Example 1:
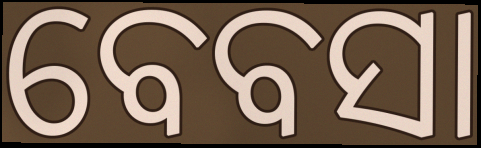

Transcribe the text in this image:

ବେବସା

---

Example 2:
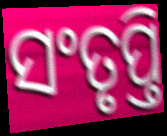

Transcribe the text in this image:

ସଂତୃପ୍ତି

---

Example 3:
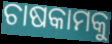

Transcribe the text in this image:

ଚାଷକାମକୁ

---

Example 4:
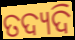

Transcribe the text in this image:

ତଦ୍ୟଦି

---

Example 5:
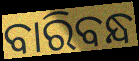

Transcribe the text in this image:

ବାରିବନ୍ଧ